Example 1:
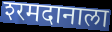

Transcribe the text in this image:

श्रमदानाला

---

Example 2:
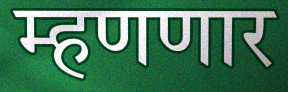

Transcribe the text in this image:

म्हणणार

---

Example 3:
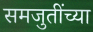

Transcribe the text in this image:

समजुतींच्या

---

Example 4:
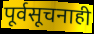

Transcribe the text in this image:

पूर्वसूचनाही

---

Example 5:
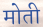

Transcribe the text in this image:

मोती